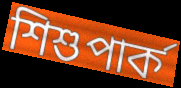
শিশুপার্ক